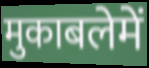
मुकाबलेमें